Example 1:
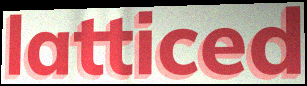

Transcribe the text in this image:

latticed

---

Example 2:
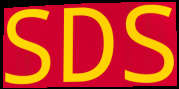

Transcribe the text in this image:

SDS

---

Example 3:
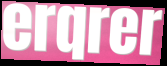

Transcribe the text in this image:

erqrer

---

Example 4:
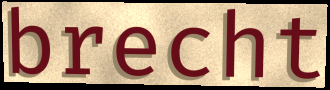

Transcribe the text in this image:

brecht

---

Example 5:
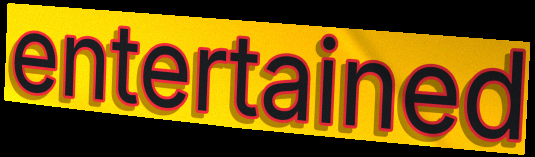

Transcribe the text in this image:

entertained